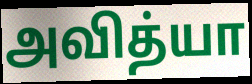
அவித்யா